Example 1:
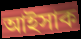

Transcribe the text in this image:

আইসাক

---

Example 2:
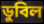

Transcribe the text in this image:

ডুবিল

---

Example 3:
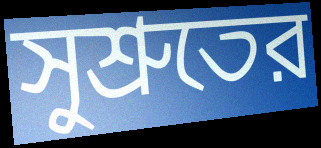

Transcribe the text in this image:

সুশ্রুতের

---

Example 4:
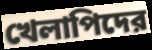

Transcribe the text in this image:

খেলাপিদের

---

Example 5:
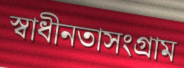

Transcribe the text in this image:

স্বাধীনতাসংগ্রাম